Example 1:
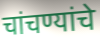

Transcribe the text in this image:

चांचण्यांचे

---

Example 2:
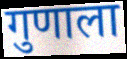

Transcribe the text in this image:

गुणाला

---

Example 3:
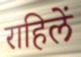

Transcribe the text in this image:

राहिलें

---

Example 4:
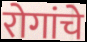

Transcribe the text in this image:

रोगांचे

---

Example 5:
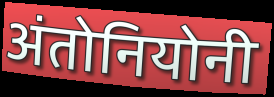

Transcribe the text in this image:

अंतोनियोनी